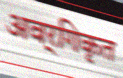
अवर्गिकृत